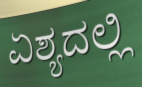
ಏಶ್ಯದಲ್ಲಿ